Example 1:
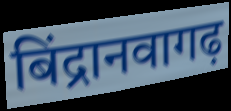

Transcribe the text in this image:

बिंद्रानवागढ़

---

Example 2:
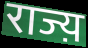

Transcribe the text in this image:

राज्य़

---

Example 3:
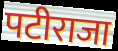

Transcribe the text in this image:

पटीराजा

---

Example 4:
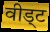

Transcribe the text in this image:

वीड्ट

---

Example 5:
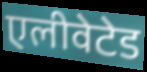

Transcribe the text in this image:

एलीवेटेड